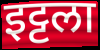
इट्टला